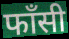
फाँसी